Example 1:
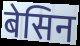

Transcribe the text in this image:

बेसिन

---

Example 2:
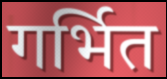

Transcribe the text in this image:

गर्भित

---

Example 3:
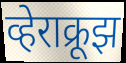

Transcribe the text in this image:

व्हेराक्रूझ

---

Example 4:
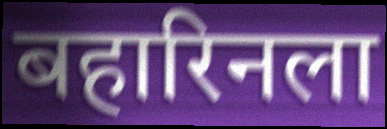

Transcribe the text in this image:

बहारिनला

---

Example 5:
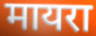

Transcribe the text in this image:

मायरा